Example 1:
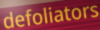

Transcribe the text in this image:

defoliators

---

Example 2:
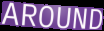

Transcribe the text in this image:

AROUND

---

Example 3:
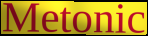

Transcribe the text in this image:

Metonic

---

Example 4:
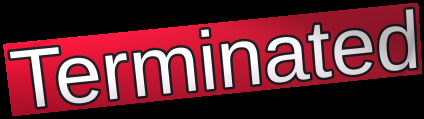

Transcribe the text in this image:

Terminated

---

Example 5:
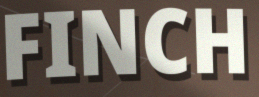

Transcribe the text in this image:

FINCH